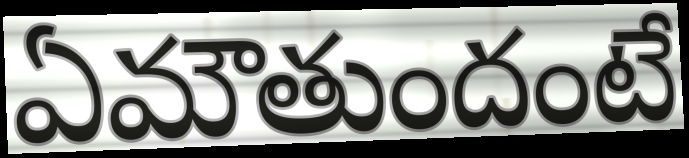
ఏమౌతుందంటే